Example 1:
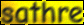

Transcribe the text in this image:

sathre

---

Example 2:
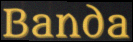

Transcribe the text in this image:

Banda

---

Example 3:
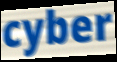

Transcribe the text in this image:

cyber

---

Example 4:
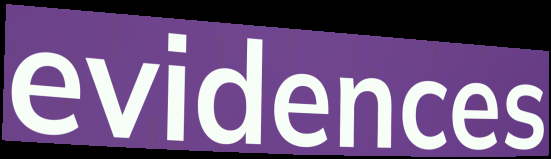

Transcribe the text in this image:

evidences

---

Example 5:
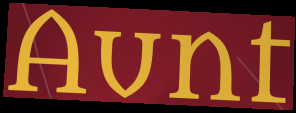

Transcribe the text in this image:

Aunt